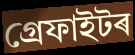
গ্ৰেফাইটৰ